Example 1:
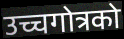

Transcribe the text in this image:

उच्चगोत्रको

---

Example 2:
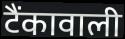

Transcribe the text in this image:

टैंकावाली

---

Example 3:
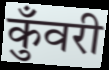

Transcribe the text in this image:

कुँवरी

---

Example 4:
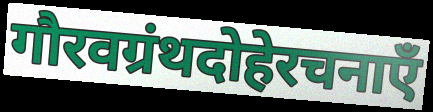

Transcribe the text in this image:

गौरवग्रंथदोहेरचनाएँ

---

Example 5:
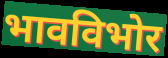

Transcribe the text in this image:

भावविभोर